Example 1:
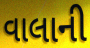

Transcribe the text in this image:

વાલાની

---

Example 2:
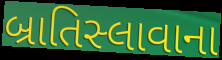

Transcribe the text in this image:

બ્રાતિસ્લાવાના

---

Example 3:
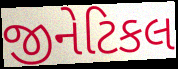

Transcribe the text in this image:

જીનેટિકલ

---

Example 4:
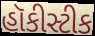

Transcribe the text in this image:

હૉકીસ્ટીક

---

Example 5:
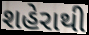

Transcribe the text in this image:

શહેરાથી